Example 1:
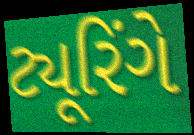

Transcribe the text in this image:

ટ્યૂરિંગે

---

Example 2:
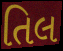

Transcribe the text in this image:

તિલ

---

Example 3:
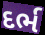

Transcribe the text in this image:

દર્ભ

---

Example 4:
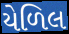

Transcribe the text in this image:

યેળિલ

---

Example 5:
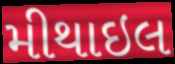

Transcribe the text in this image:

મીથાઇલ